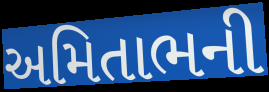
અમિતાભની